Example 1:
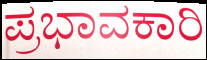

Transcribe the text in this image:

ಪ್ರಭಾವಕಾರಿ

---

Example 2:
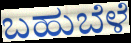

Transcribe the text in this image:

ಬಹುಬೆಳೆ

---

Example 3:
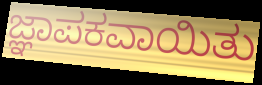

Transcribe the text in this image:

ಜ್ಞಾಪಕವಾಯಿತು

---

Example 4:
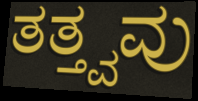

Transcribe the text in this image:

ತತ್ತ್ವವು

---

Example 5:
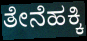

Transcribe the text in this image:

ತೇನೆಹಕ್ಕಿ